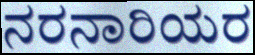
ನರನಾರಿಯರ